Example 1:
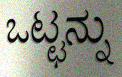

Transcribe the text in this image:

ಒಟ್ಟನ್ನು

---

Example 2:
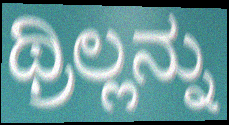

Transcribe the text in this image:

ಥ್ರಿಲ್ಲನ್ನು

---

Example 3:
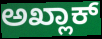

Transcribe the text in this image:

ಅಖ್ಲಾಕ್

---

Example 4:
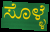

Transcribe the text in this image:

ಸೊಳ್ಳೆ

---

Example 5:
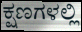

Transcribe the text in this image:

ಕ್ಷಣಗಳಲ್ಲಿ